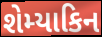
શેમ્યાકિન